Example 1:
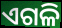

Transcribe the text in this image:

ଏଗଳି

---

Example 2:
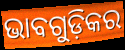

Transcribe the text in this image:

ଭାବଗୁଡ଼ିକର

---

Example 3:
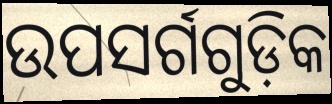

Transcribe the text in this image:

ଉପସର୍ଗଗୁଡ଼ିକ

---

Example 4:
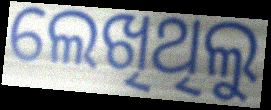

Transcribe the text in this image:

ଲେଖିଥିଲୁ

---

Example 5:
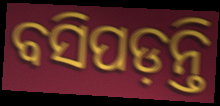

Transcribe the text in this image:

ବସିପଡ଼ନ୍ତି